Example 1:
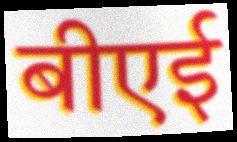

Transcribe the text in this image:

बीएई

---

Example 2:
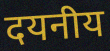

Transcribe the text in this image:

दयनीय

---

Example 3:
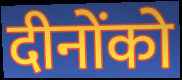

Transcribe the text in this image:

दीनोंको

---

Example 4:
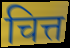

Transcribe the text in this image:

चित्त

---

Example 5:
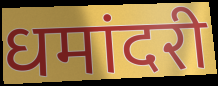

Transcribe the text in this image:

धमांदरी